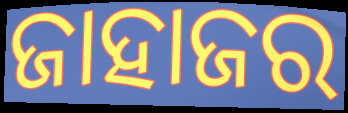
ଜାହାଜର